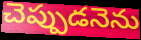
చెప్పుడనెను